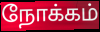
நோக்கம்